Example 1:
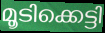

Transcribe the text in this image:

മൂടിക്കെട്ടി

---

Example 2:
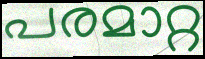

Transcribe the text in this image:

പരമാറ്റ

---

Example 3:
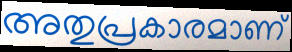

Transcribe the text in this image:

അതുപ്രകാരമാണ്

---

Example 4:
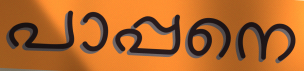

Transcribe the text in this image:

പാപ്പനെ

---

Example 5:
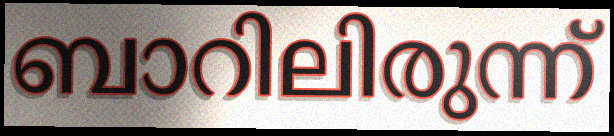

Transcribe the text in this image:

ബാറിലിരുന്ന്